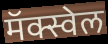
मॅक्स्वेल